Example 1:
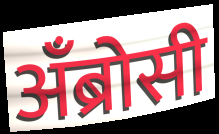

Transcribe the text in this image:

अँब्रोसी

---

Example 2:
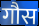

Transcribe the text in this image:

गौस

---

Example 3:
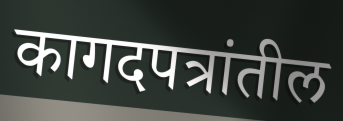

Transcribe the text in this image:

कागदपत्रांतील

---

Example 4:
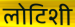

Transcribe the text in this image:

लोटिशी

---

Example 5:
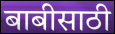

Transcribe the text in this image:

बाबीसाठी